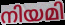
നിയമി